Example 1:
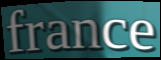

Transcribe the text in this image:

france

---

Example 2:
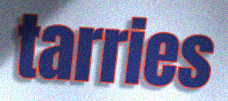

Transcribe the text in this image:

tarries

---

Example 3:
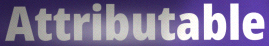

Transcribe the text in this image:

Attributable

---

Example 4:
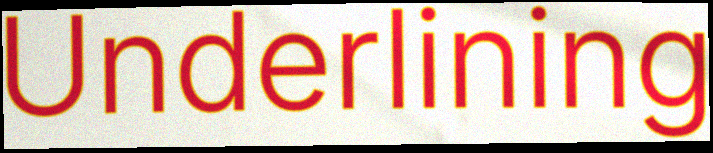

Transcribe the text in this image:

Underlining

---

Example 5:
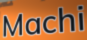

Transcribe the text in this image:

Machi